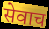
सेवाच